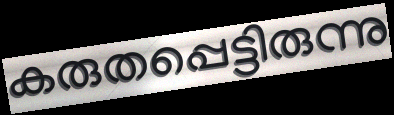
കരുതപ്പെട്ടിരുന്നു